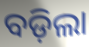
ବଡ଼ିଲା